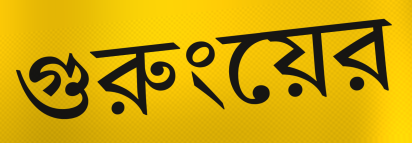
গুরুংয়ের